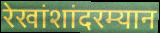
रेखांशांदरम्यान